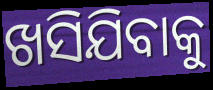
ଖସିଯିବାକୁ